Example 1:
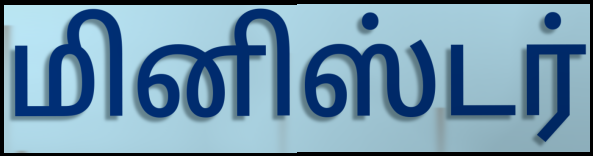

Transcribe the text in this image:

மினிஸ்டர்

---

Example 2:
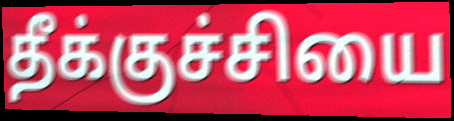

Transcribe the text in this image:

தீக்குச்சியை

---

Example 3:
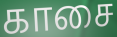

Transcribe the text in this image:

காசை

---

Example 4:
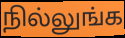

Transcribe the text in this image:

நில்லுங்க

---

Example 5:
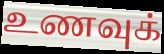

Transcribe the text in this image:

உணவுக்